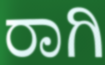
ರಾಗಿ